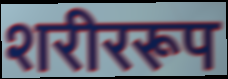
शरीररूप